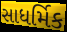
સાધર્મિક